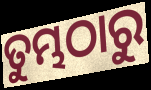
ତୁମ୍ଭଠାରୁ